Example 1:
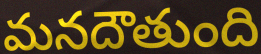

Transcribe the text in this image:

మనదౌతుంది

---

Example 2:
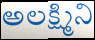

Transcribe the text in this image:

అలక్ష్మిని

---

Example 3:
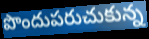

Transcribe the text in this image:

పొందుపరుచుకున్న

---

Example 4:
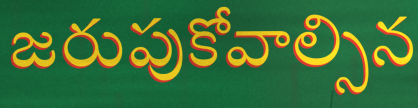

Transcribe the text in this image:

జరుపుకోవాల్సిన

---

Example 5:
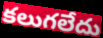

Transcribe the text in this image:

కలుగలేదు